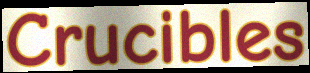
Crucibles